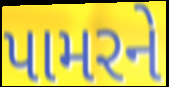
પામરને